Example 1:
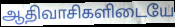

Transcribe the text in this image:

ஆதிவாசிகளிடையே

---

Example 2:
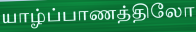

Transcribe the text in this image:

யாழ்ப்பாணத்திலோ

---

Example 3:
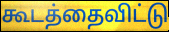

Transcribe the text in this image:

கூடத்தைவிட்டு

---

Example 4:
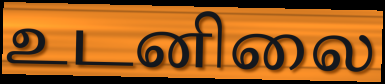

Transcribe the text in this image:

உடனிலை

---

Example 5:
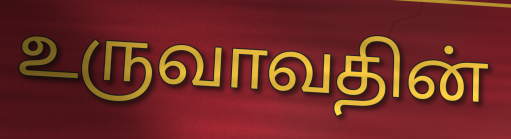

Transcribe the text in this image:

உருவாவதின்